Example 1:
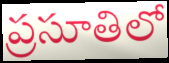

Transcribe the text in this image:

ప్రసూతిలో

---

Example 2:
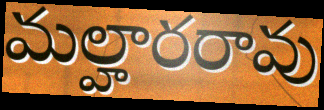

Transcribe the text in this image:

మల్హారరావు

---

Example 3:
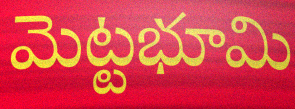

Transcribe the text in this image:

మెట్టభూమి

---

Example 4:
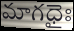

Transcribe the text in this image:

మాగధైః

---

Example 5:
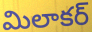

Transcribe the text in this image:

మిలాకర్